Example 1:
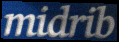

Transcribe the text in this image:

midrib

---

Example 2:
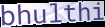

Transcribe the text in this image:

bhulthi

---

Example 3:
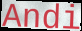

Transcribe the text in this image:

Andi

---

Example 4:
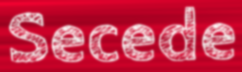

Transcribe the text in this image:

Secede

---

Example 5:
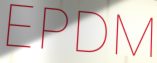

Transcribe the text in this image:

EPDM